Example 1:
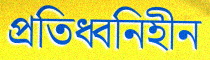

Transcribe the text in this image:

প্রতিধ্বনিহীন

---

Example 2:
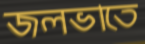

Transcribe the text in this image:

জলভাতে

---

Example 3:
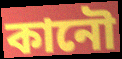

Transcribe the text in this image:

কানৌ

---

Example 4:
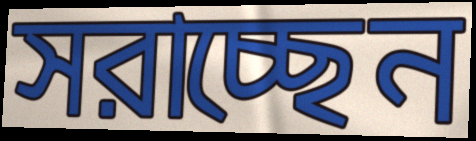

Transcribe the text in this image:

সরাচ্ছেন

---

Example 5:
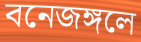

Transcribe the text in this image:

বনেজঙ্গলে